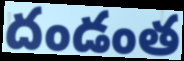
దండంత